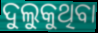
ଦୁଲୁକୁଥିବା